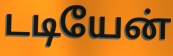
டடியேன்